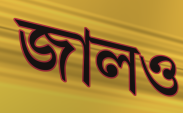
জালও